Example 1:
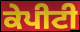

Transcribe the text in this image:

ਕੇਪੀਟੀ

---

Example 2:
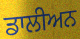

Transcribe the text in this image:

ਡਾਲੀਅਨ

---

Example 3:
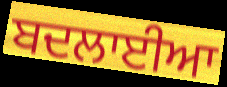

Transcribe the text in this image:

ਬਦਲਾਈਆ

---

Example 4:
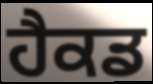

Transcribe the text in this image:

ਹੈਕਡ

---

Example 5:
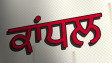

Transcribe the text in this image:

ਕਾਂਧਲ